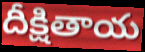
దీక్షితాయ